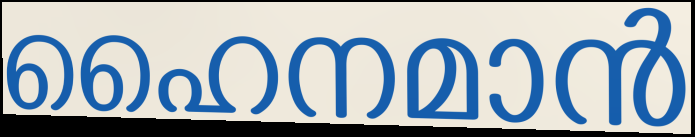
ഹൈനമാൻ